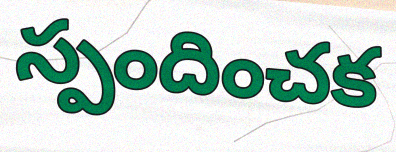
స్పందించక